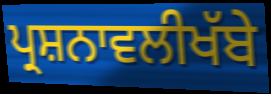
ਪ੍ਰਸ਼ਨਾਵਲੀਖੱਬੇ